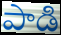
పాడి